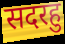
सदरहु